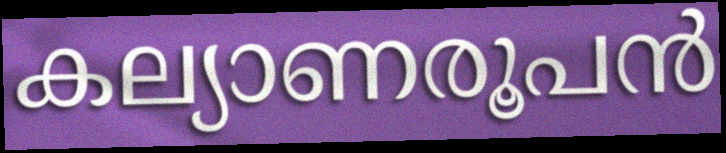
കല്യാണരൂപൻ